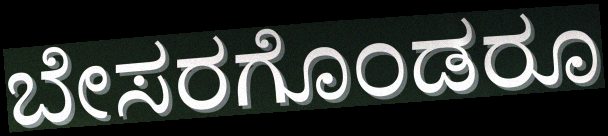
ಬೇಸರಗೊಂಡರೂ